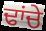
ਢਾਂਚੇ